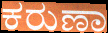
ಕರುಣಾ